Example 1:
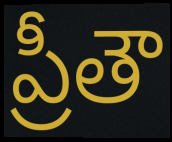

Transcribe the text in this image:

ప్రీతౌ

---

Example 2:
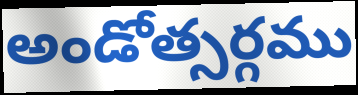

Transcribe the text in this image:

అండోత్సర్గము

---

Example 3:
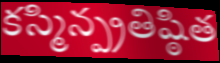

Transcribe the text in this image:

కస్మిన్ప్రతిష్ఠిత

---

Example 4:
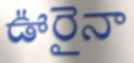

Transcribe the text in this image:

ఊరైనా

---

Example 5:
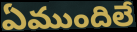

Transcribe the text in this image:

ఏముందిలే